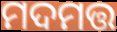
ମଦମତ୍ତ